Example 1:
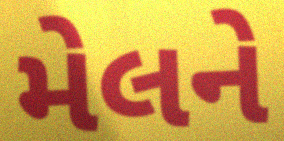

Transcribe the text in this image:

મેલને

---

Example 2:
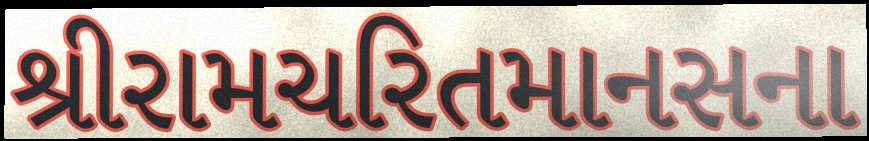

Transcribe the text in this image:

શ્રીરામચરિતમાનસના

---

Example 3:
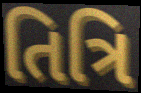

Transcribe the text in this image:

તિત્રિ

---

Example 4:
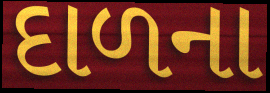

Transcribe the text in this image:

દાળના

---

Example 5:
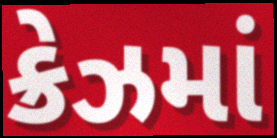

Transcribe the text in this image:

ક્રેઝમાં